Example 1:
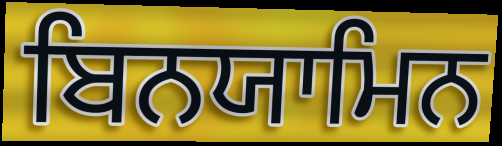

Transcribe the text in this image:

ਬਿਨਯਾਮਿਨ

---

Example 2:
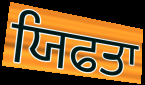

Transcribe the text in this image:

ਯਿਫਤਾ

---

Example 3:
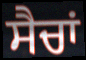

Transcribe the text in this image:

ਸੈਚਾਂ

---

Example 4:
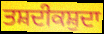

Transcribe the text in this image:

ਤਸ਼ਦੀਕਸ਼ੁਦਾ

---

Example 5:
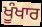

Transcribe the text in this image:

ਖੂੰਖਾਰ